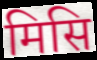
मिसि